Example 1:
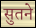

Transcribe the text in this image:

सुतने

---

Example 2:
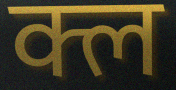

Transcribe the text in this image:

क्ल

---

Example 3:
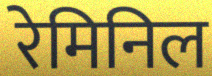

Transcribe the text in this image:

रेमिनिल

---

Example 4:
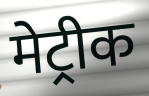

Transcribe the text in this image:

मेट्रीक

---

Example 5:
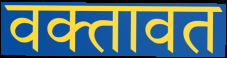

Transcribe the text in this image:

वक्तावत